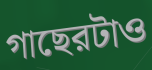
গাছেরটাও